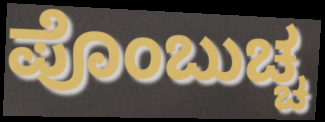
ಪೊಂಬುಚ್ಚ